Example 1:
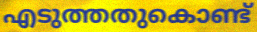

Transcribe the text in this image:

എടുത്തതുകൊണ്ട്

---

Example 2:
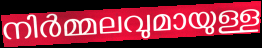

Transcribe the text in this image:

നിർമ്മലവുമായുള്ള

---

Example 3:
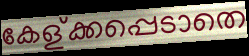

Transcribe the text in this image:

കേള്ക്കപ്പെടാതെ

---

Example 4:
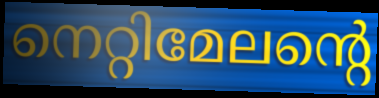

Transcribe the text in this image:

നെറ്റിമേലന്റെ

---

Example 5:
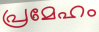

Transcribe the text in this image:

പ്രമേഹം